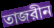
তাজরীন